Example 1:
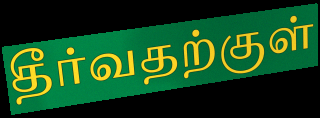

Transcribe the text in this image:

தீர்வதற்குள்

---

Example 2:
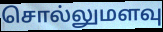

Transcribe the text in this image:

சொல்லுமளவு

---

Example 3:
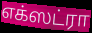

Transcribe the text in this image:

எக்ஸட்ரா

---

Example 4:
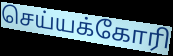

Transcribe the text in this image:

செய்யக்கோரி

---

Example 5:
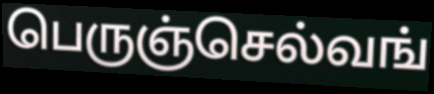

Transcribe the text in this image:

பெருஞ்செல்வங்